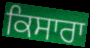
ਕਿਸਾਰਾ